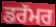
ਡਰੱਮਰ